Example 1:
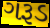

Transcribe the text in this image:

ગરૂડ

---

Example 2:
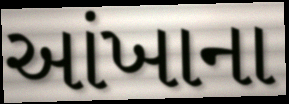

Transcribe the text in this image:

આંખાના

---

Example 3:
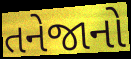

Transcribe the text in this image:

તનેજાનો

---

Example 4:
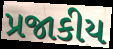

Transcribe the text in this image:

પ્રજાકીય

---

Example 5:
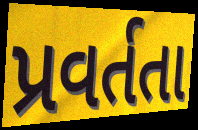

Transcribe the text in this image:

પ્રવર્તતા